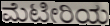
ಮೆಟೀರಿಯ